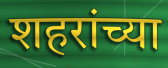
शहरांच्या